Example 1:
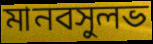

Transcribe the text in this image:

মানবসুলভ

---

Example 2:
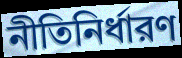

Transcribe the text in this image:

নীতিনির্ধারণ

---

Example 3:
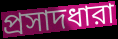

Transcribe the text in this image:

প্রসাদধারা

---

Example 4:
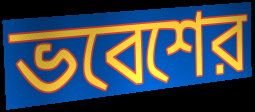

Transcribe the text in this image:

ভবেশের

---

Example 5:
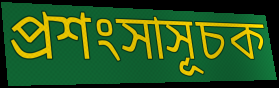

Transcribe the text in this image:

প্রশংসাসূচক